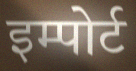
इम्पोर्ट